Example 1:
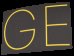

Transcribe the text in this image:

GE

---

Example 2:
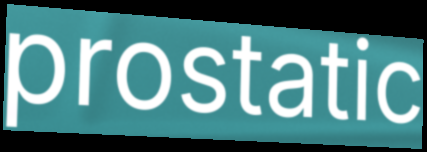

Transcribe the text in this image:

prostatic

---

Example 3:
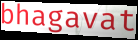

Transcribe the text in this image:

bhagavat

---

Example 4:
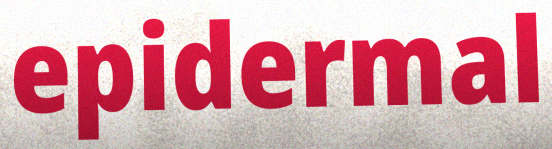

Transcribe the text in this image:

epidermal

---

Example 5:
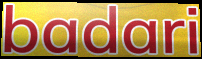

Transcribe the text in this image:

badari